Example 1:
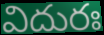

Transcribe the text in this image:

విదురః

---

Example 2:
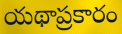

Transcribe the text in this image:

యథాప్రకారం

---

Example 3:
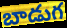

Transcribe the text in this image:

బాడుగ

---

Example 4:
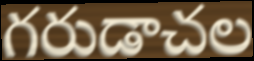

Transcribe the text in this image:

గరుడాచల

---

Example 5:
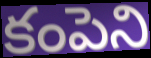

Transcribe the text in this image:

కంపెని